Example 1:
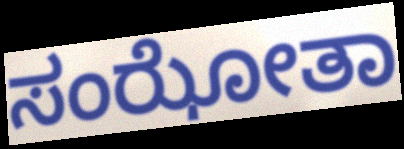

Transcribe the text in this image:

ಸಂಝೋತಾ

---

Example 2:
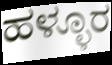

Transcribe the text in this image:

ಹಳ್ಳೂರ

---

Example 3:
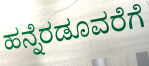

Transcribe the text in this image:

ಹನ್ನೆರಡೂವರೆಗೆ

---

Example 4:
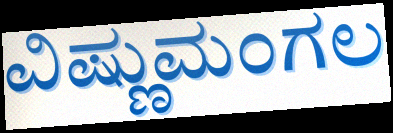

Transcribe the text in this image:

ವಿಷ್ಣುಮಂಗಲ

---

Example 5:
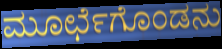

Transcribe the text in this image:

ಮೂರ್ಛೆಗೊಂಡನು